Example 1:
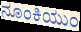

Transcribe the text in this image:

ನೂಂಕಿಯುಂ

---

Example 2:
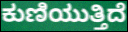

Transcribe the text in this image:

ಕುಣಿಯುತ್ತಿದೆ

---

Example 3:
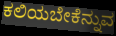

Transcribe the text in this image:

ಕಲಿಯಬೇಕೆನ್ನುವ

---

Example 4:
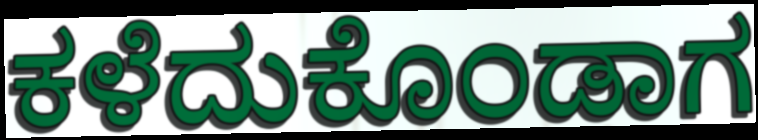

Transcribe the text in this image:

ಕಳೆದುಕೊಂಡಾಗ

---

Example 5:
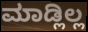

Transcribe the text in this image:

ಮಾಡ್ಲಿಲ್ಲ